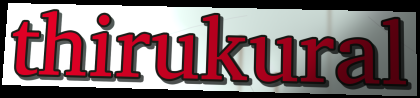
thirukural